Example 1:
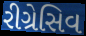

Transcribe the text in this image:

રીગ્રેસિવ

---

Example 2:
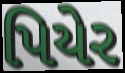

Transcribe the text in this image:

પિયેર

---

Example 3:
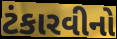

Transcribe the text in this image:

ટંકારવીનો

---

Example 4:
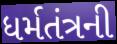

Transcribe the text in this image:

ધર્મતંત્રની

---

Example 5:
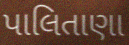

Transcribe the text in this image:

પાલિતાણા